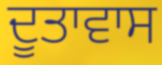
ਦੂਤਾਵਾਸ